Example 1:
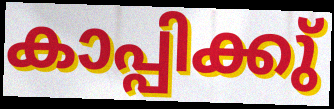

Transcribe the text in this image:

കാപ്പിക്കു്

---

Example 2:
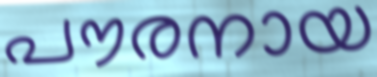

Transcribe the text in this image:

പൗരനായ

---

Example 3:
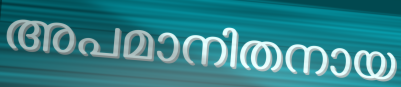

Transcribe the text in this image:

അപമാനിതനായ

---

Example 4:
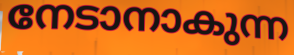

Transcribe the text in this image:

നേടാനാകുന്ന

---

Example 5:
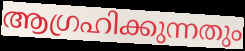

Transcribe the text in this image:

ആഗ്രഹിക്കുന്നതും